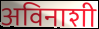
अविनाशी